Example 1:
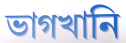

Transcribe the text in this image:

ভাগখানি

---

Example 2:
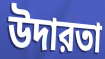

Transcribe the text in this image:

উদারতা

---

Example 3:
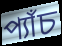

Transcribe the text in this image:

প্যাঁচ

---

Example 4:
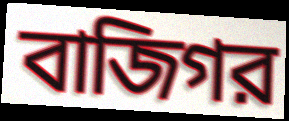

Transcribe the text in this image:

বাজিগর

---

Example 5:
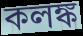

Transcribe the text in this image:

কলঙ্ক